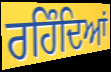
ਰਹਿੰਦਿਆਂ